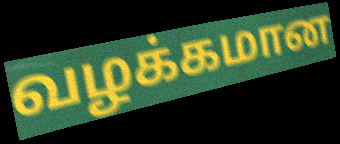
வழக்கமான